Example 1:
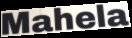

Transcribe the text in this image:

Mahela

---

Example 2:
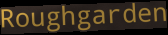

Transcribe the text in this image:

Roughgarden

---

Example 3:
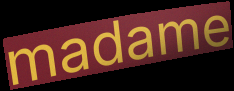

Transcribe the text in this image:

madame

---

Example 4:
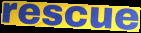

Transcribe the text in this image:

rescue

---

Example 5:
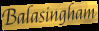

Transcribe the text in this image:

Balasingham